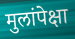
मुलांपेक्षा